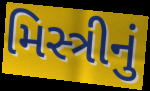
મિસ્ત્રીનું